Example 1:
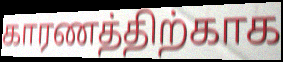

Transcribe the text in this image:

காரணத்திற்காக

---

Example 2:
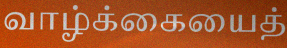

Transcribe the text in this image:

வாழ்க்கையைத்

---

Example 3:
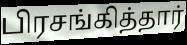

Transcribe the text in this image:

பிரசங்கித்தார்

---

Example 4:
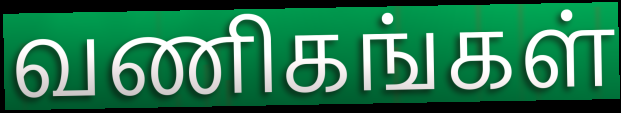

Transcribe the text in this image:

வணிகங்கள்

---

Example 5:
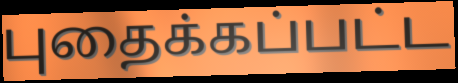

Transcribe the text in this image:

புதைக்கப்பட்ட